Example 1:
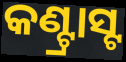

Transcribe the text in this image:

କଣ୍ଟ୍ରାସ୍ଟ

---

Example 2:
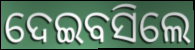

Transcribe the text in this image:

ଦେଇବସିଲେ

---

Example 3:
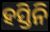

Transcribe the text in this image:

ହସ୍ତିନି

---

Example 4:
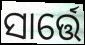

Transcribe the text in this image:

ସାର୍ତ୍ତେ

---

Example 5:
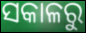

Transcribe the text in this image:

ସକାଳରୁ